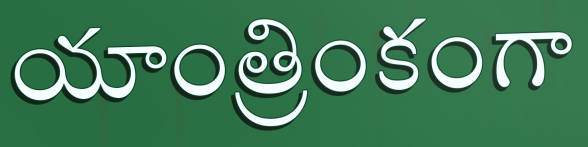
యాంత్రింకంగా